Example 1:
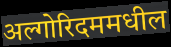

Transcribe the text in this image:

अल्गोरिदममधील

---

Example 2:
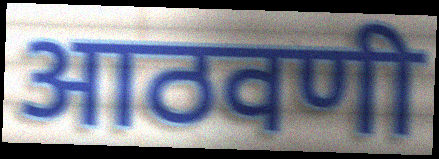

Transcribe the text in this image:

आठवणी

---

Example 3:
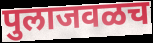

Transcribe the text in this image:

पुलाजवळच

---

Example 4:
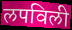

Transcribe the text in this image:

लपविली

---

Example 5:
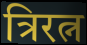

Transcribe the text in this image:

त्रिरत्न